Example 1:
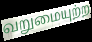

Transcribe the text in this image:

வறுமையுற்ற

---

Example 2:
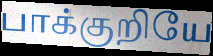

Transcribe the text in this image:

பாக்குறியே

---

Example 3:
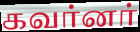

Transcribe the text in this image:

கவர்னர்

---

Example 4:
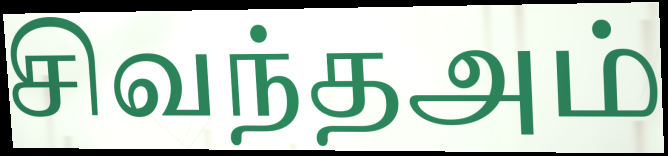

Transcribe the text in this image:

சிவந்தஅம்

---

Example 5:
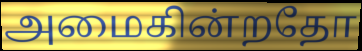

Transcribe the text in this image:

அமைகின்றதோ